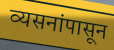
व्यसनांपासून